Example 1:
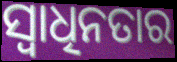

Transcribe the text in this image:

ସ୍ୱାଧିନତାର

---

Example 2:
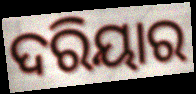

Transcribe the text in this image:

ଦରିୟାର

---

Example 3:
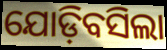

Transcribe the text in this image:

ଯୋଡ଼ିବସିଲା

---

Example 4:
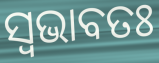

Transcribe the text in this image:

ସ୍ଵଭାବତଃ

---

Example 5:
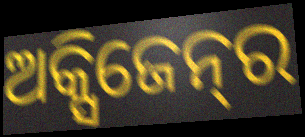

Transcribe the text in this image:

ଅକ୍ସିଜେନ୍‌ର